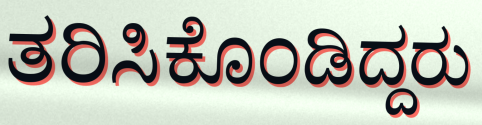
ತರಿಸಿಕೊಂಡಿದ್ದರು